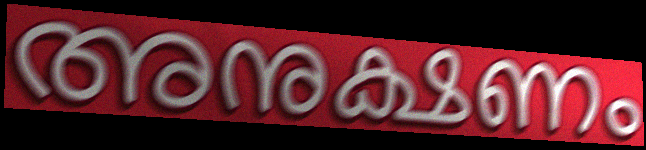
അനുക്ഷണം